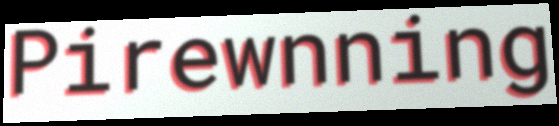
Pirewnning